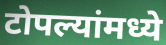
टोपल्यांमध्ये